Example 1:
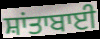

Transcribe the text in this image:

ਸ਼ਾਂਤਾਬਾਈ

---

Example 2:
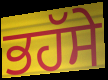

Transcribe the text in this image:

ਭਹੱਸੇ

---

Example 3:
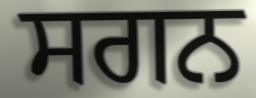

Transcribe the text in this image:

ਸਗਨ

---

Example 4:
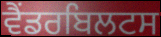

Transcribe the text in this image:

ਵੈਂਡਰਬਿਲਟਸ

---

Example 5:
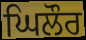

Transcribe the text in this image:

ਘਿਲੌਰ